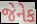
જેનેક